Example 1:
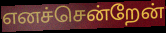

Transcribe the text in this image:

எனச்சென்றேன்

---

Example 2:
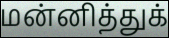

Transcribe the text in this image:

மன்னித்துக்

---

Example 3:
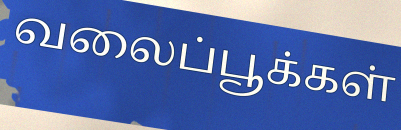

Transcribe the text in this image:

வலைப்பூக்கள்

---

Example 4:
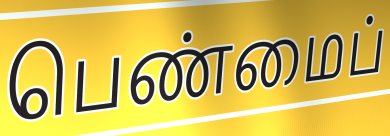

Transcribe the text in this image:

பெண்மைப்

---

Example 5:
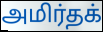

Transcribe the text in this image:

அமிர்தக்